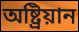
অষ্ট্ৰিয়ান